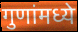
गुणांमध्ये